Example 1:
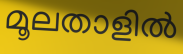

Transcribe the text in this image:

മൂലതാളിൽ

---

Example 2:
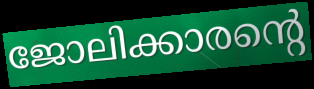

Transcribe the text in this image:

ജോലിക്കാരന്റെ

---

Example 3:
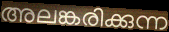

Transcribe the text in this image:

അലങ്കരിക്കുന്ന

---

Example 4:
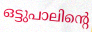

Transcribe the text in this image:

ഒട്ടുപാലിന്റെ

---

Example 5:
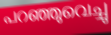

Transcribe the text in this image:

പറഞ്ഞുവെച്ചു